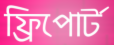
ফ্রিপোর্ট